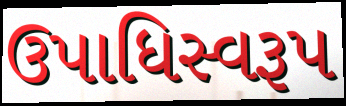
ઉપાધિસ્વરૂપ